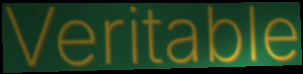
Veritable